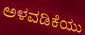
ಅಳವಡಿಕೆಯು